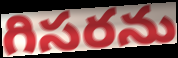
గిసరను